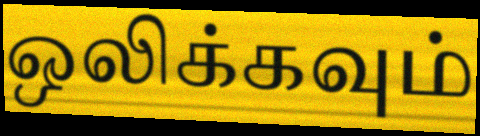
ஒலிக்கவும்